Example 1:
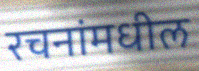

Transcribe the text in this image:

रचनांमधील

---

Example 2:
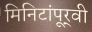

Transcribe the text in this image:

मिनिटांपूर्वी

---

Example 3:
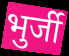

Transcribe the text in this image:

भुर्जी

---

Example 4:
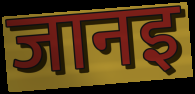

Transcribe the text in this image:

जानइ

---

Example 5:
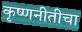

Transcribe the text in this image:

कृष्णनीतीचा